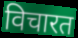
विचारत